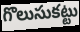
గొలుసుకట్టు